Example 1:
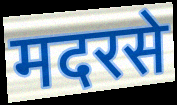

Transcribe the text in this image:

मदरसे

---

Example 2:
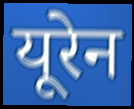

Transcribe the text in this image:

यूरेन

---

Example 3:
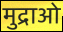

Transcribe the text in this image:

मुद्राओ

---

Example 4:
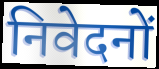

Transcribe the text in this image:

निवेदनों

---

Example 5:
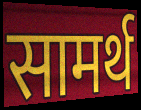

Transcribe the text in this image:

सामर्थ